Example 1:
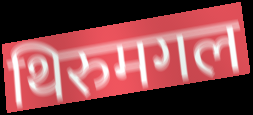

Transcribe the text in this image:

थिरुमगल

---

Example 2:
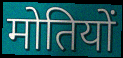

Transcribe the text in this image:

मोतियों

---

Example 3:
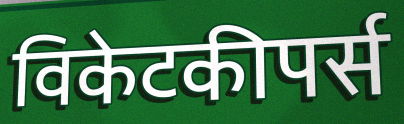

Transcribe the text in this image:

विकेटकीपर्स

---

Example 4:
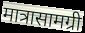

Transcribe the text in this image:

मात्रासामग्री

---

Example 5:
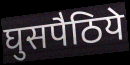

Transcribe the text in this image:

घुसपैठिये